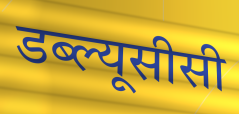
डब्ल्यूसीसी